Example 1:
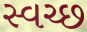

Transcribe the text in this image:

સ્વચ્છ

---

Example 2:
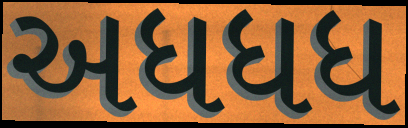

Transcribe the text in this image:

અધધધ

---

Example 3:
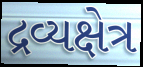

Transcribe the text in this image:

દ્રવ્યક્ષેત્ર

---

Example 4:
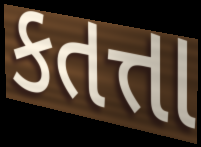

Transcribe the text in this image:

કતત્તા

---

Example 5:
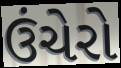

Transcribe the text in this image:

ઉંચેરો